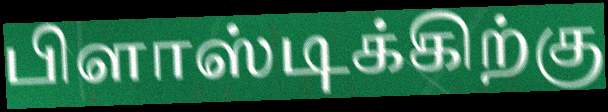
பிளாஸ்டிக்கிற்கு